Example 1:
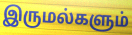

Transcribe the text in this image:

இருமல்களும்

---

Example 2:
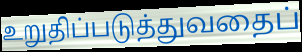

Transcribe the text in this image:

உறுதிப்படுத்துவதைப்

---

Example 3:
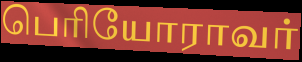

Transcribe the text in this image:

பெரியோராவர்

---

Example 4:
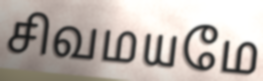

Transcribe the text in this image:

சிவமயமே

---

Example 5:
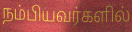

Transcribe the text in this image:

நம்பியவர்களில்